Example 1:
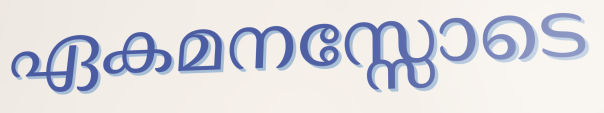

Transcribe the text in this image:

ഏകമനസ്സോടെ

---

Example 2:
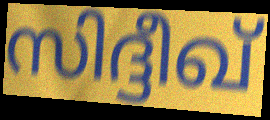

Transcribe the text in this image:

സിദ്ദീഖ്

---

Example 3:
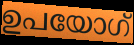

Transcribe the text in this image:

ഉപയോഗ്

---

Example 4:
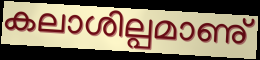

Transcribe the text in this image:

കലാശില്പമാണു്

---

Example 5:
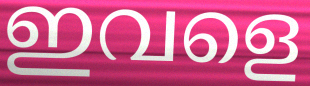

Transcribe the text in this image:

ഇവളെ